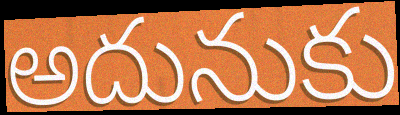
అదునుకు